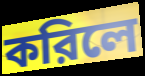
করিলে